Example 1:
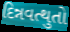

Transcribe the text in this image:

દિન્નવત્થુતો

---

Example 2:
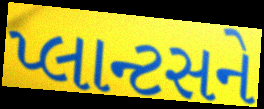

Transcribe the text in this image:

પ્લાન્ટસને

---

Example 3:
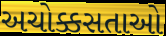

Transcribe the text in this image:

અચોક્કસતાઓ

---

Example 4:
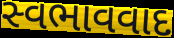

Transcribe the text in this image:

સ્વભાવવાદ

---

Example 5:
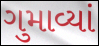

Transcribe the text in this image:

ગુમાવ્યાં